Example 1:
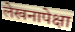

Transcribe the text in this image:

लेखनापेक्षा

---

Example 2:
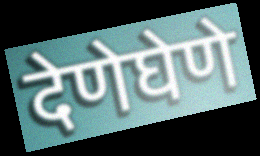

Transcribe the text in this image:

देणेघेणे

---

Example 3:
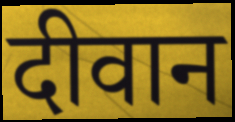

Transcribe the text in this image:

दीवान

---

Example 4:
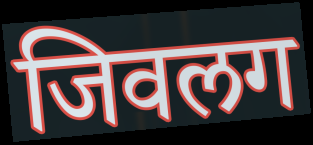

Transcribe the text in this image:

जिवलग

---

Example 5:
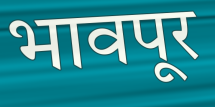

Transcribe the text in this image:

भावपूर